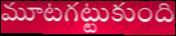
మూటగట్టుకుంది